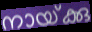
നായ്‌ക്കു